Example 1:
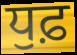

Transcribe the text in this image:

ਧੁਫ਼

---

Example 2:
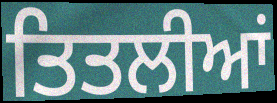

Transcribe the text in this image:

ਤਿਤਲੀਆਂ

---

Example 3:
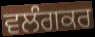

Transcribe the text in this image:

ਵਲੰਗਕਰ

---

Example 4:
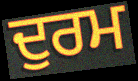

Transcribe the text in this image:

ਦੁਰਮ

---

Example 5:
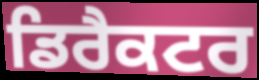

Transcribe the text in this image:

ਡਿਰੈਕਟਰ